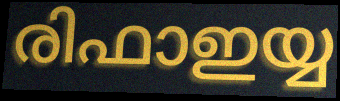
രിഫാഇയ്യ